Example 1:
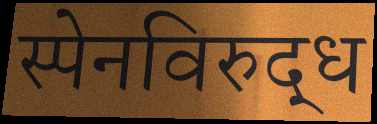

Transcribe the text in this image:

स्पेनविरुद्ध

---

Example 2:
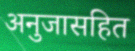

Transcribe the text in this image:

अनुजासहित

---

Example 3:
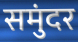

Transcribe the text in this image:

समुंदर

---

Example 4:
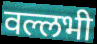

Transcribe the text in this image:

वल्लभी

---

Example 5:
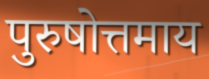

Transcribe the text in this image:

पुरुषोत्तमाय